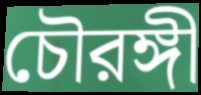
চৌরঙ্গী